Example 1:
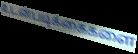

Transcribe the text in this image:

உடன்படிக்கைகளை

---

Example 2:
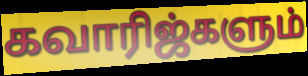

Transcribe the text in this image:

கவாரிஜ்களும்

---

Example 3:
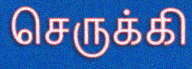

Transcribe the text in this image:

செருக்கி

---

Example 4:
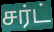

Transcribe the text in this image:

சர்ட்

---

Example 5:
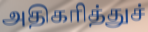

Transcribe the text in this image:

அதிகரித்துச்